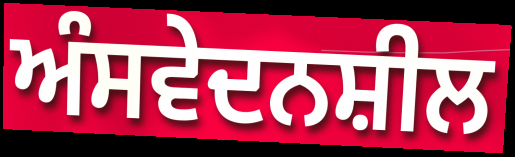
ਅੰਸਵੇਦਨਸ਼ੀਲ